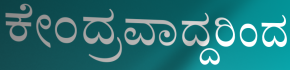
ಕೇಂದ್ರವಾದ್ದರಿಂದ